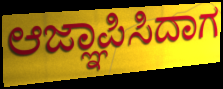
ಆಜ್ಞಾಪಿಸಿದಾಗ